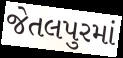
જેતલપુરમાં